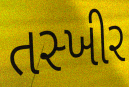
તસ્ખીર